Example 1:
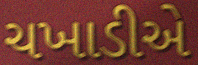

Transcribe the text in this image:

ચખાડીએ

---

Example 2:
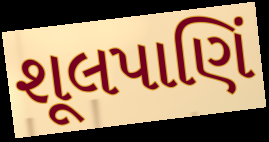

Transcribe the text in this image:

શૂલપાણિં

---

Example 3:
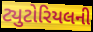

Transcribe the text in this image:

ટ્યુટોરિયલની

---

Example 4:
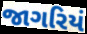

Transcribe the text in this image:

જાગરિયં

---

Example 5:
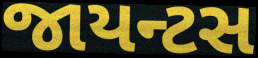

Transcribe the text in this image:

જાયન્ટસ